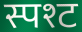
स्पश्ट